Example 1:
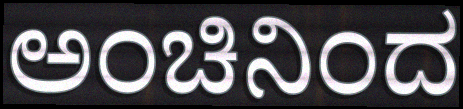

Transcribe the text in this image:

ಅಂಚಿನಿಂದ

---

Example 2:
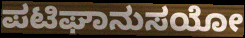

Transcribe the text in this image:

ಪಟಿಘಾನುಸಯೋ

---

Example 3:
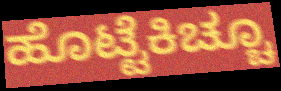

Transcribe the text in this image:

ಹೊಟ್ಟೆಕಿಚ್ಚೂ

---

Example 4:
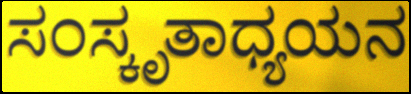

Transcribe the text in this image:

ಸಂಸ್ಕೃತಾಧ್ಯಯನ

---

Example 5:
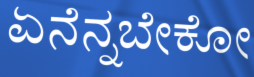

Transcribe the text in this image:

ಏನೆನ್ನಬೇಕೋ